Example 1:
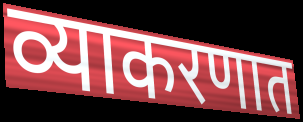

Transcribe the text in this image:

व्याकरणात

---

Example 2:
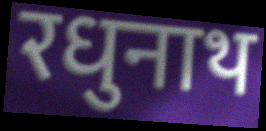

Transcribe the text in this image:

रधुनाथ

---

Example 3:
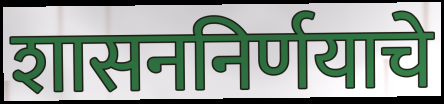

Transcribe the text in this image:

शासननिर्णयाचे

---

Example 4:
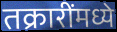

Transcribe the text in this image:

तक्रारींमध्ये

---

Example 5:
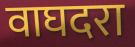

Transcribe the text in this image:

वाघदरा